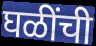
घळींची